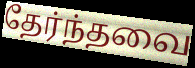
தேர்ந்தவை